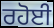
ਰਹੋਈ